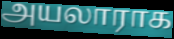
அயலாராக